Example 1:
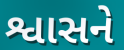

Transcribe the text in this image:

શ્વાસને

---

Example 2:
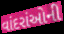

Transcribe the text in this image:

વાંદરાંઓની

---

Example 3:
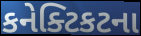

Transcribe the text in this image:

કનેક્ટિકટના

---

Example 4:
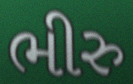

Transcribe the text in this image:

ભીરુ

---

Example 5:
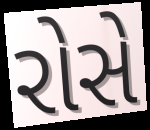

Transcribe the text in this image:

રોસે